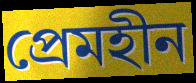
প্রেমহীন